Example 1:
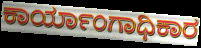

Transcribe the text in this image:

ಕಾರ್ಯಾಂಗಾಧಿಕಾರ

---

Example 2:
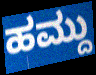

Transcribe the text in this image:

ಹಮ್ದು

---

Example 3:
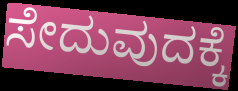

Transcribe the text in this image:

ಸೇದುವುದಕ್ಕೆ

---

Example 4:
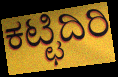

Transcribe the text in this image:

ಕಟ್ಟಿದಿರಿ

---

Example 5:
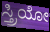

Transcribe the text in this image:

ಸ್ತ್ರಿಯೋ